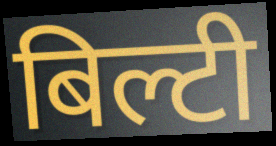
बिल्टी